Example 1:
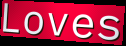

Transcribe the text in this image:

Loves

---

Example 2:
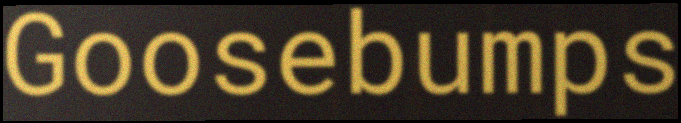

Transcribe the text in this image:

Goosebumps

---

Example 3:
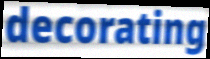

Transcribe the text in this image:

decorating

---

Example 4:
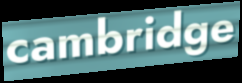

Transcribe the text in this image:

cambridge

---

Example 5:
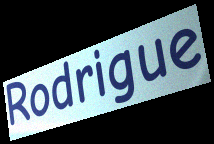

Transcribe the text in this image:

Rodrigue